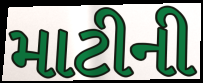
માટીની